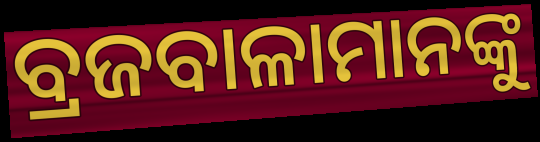
ବ୍ରଜବାଳାମାନଙ୍କୁ